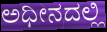
ಅಧೀನದಲ್ಲಿ